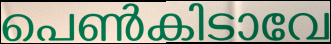
പെൺകിടാവേ